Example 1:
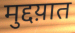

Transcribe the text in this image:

मुद्दय़ात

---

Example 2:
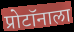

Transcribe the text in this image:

प्रोटॉनाला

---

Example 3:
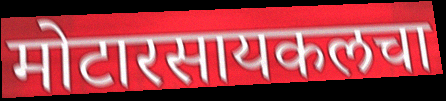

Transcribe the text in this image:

मोटारसायकलचा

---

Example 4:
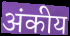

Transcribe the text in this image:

अंकीय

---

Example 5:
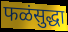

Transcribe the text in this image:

फळंसुद्धा